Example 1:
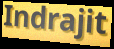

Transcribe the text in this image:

Indrajit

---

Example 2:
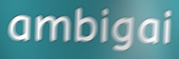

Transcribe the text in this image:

ambigai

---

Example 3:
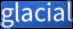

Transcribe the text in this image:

glacial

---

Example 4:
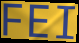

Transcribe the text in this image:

FEI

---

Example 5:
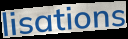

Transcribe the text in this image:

lisations